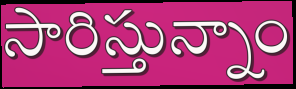
సారిస్తున్నాం